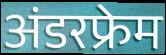
अंडरफ्रेम